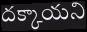
దక్కాయని